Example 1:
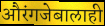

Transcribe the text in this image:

औरंगजेबालाही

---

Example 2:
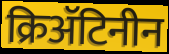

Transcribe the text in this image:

क्रिॲटिनीन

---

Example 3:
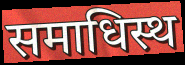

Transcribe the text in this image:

समाधिस्थ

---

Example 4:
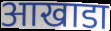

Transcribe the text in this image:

आखाडा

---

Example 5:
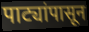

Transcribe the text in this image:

पाट्यांपासून